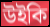
উইকি